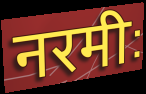
नरमीः